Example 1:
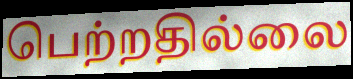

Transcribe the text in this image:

பெற்றதில்லை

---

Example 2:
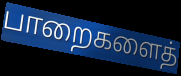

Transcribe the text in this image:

பாறைகளைத்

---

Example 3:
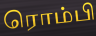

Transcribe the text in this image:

ரொம்பி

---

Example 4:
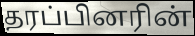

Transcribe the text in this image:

தரப்பினரின்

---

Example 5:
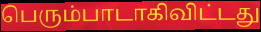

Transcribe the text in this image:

பெரும்பாடாகிவிட்டது